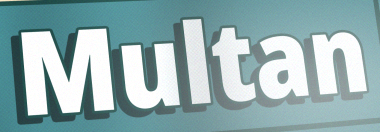
Multan